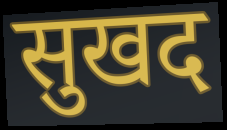
सुखद